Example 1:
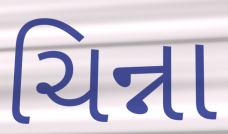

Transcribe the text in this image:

ચિન્ના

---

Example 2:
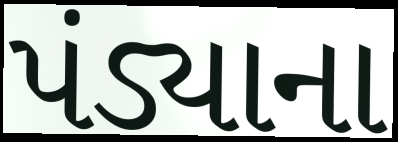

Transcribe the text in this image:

પંડ્યાના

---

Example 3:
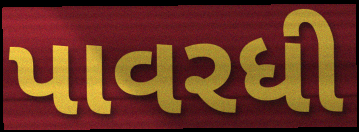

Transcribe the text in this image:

પાવરધી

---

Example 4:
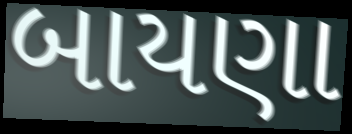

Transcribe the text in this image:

બાયણા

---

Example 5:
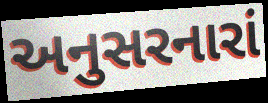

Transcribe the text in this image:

અનુસરનારાં